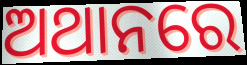
ଅଥାନରେ